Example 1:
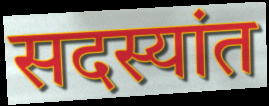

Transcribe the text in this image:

सदस्यांत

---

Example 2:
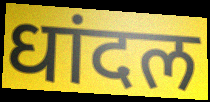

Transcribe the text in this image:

धांदल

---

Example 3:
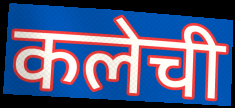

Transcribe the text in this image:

कलेची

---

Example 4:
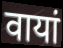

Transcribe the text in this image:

वायां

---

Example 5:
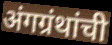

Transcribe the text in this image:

अंगग्रंथांची